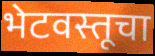
भेटवस्तूचा